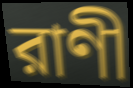
রাণী